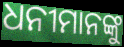
ଧନୀମାନଙ୍କୁ